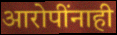
आरोपींनाही